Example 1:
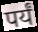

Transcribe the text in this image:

पर्यं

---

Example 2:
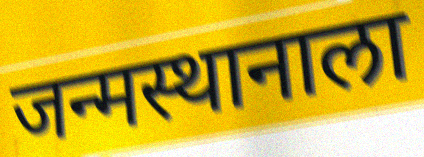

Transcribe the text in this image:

जन्मस्थानाला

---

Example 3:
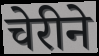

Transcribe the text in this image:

चेरीने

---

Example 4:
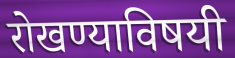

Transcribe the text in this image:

रोखण्याविषयी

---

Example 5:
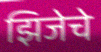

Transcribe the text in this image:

झिजेचे